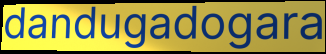
dandugadogara